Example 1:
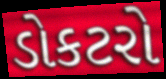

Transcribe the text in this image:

ડોકટરો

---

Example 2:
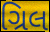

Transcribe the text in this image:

ગ્રિલ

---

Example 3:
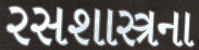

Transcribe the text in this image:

રસશાસ્ત્રના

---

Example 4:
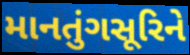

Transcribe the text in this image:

માનતુંગસૂરિને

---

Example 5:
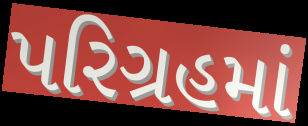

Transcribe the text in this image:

પરિગ્રહમાં